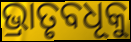
ଭ୍ରାତୃବଧୂକୁ